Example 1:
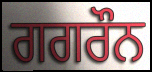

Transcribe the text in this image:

ਗਗਰੌਨ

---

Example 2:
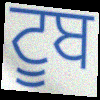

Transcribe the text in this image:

ਟੂਬ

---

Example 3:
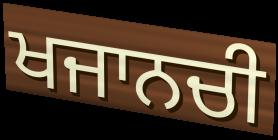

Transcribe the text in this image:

ਖਜਾਨਚੀ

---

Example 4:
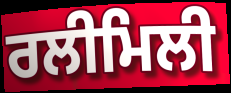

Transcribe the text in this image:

ਰਲੀਮਿਲੀ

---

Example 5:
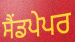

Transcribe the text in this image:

ਸੈਂਡਪੇਪਰ